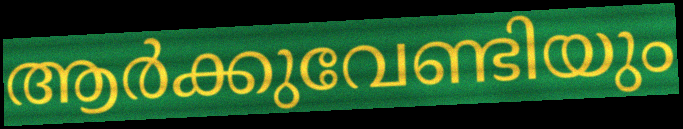
ആർക്കുവേണ്ടിയും